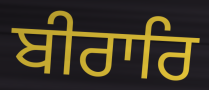
ਬੀਰਾਰਿ